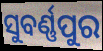
ସୁବର୍ଣ୍ଣପୁର